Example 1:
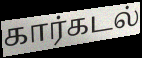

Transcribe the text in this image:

கார்கடல்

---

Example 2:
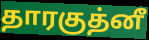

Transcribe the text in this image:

தாரகுத்னீ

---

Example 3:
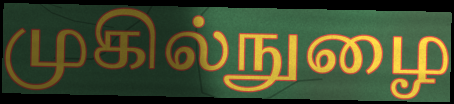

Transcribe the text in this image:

முகில்நுழை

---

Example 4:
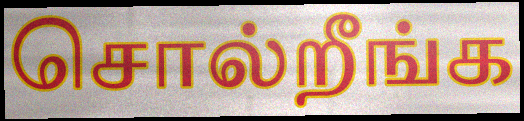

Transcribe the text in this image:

சொல்றீங்க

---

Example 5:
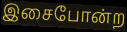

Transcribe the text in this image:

இசைபோன்ற